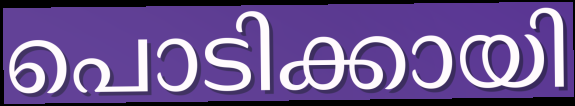
പൊടിക്കായി